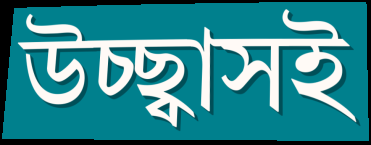
উচ্ছ্বাসই